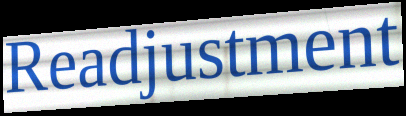
Readjustment